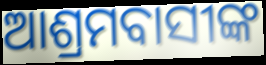
ଆଶ୍ରମବାସୀଙ୍କ